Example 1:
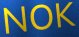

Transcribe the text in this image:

NOK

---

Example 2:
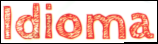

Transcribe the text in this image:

Idioma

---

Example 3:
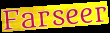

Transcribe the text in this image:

Farseer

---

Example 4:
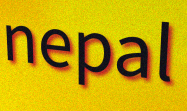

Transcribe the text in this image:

nepal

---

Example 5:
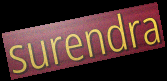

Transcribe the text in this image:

surendra